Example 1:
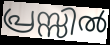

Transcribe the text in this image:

പ്രസ്സിൽ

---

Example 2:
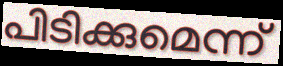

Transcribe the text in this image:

പിടിക്കുമെന്ന്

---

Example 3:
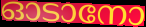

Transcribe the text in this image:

ഓടാനോ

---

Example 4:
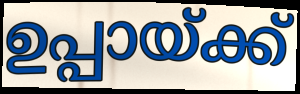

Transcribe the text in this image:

ഉപ്പായ്ക്ക്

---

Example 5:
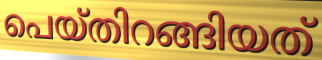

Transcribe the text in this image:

പെയ്തിറങ്ങിയത്